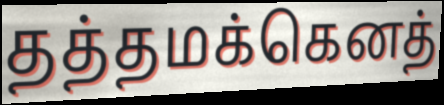
தத்தமக்கெனத்